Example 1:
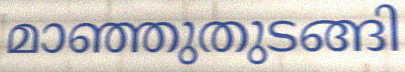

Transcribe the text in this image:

മാഞ്ഞുതുടങ്ങി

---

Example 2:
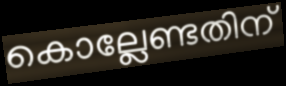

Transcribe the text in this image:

കൊല്ലേണ്ടതിന്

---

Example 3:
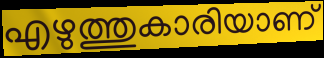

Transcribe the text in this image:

എഴുത്തുകാരിയാണ്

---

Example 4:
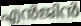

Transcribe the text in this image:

എൻജിൻ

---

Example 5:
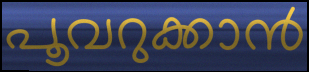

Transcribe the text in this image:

പൂവറുക്കാൻ